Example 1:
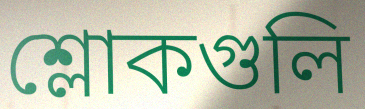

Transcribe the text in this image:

শ্লোকগুলি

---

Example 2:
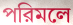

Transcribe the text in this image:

পরিমলে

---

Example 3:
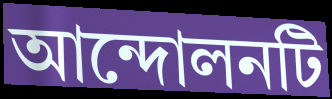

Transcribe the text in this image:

আন্দোলনটি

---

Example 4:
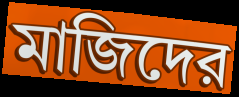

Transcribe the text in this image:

মাজিদের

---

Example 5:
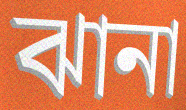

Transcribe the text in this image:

ঝানা